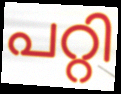
പറ്റി